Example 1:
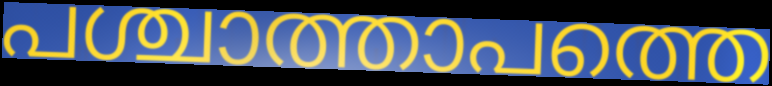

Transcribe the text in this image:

പശ്ചാത്താപത്തെ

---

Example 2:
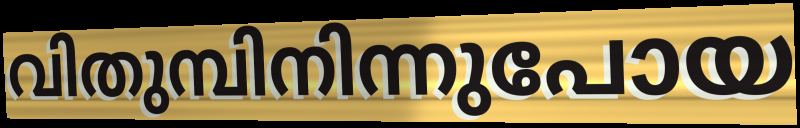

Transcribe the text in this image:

വിതുമ്പിനിന്നുപോയ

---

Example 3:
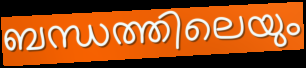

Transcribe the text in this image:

ബന്ധത്തിലെയും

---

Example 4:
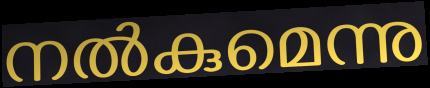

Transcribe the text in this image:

നൽകുമെന്നു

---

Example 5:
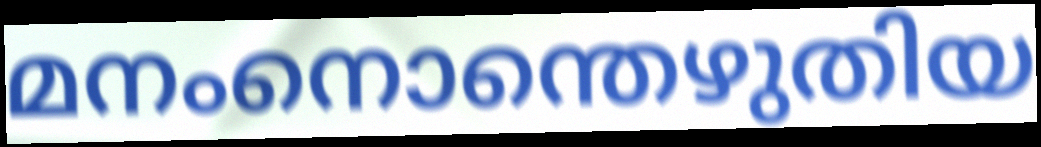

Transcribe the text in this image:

മനംനൊന്തെഴുതിയ